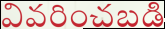
వివరించబడి